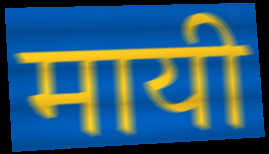
मायी